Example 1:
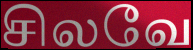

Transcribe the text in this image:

சிலவே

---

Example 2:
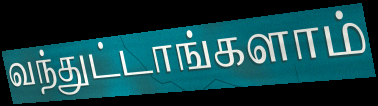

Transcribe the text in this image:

வந்துட்டாங்களாம்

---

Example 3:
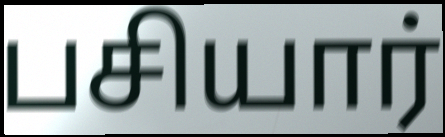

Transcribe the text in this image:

பசியார்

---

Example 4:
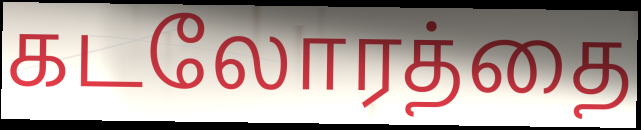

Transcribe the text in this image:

கடலோரத்தை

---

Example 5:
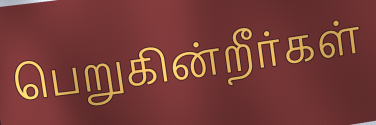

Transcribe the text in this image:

பெறுகின்றீர்கள்